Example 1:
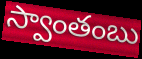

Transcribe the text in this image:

స్వాంతంబు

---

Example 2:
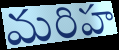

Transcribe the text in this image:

మరిహ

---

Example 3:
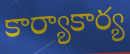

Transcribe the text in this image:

కార్యాకార్య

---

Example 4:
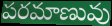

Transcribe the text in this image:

పరమాణువు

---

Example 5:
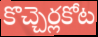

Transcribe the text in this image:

కొచ్చెర్లకోట